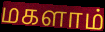
மகளாம்